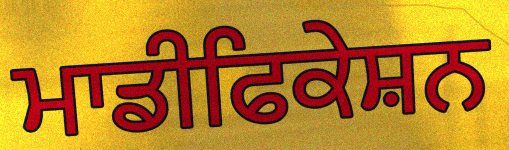
ਮਾਡੀਫਿਕੇਸ਼ਨ